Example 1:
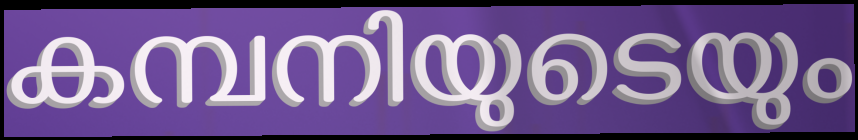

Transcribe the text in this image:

കമ്പനിയുടെയും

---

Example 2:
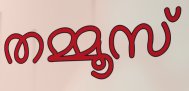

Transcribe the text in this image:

തമ്മൂസ്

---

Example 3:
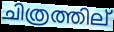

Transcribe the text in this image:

ചിത്രത്തില്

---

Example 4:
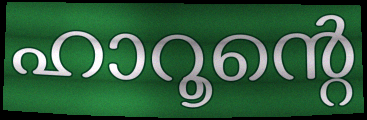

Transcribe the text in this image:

ഹാറൂന്റെ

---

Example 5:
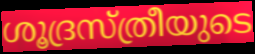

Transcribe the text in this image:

ശൂദ്രസ്ത്രീയുടെ